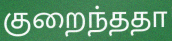
குறைந்ததா